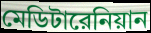
মেডিটারেনিয়ান